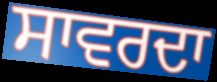
ਸਾਵਰਦਾ